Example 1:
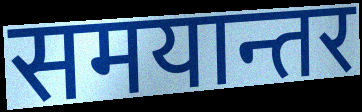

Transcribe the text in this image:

समयान्तर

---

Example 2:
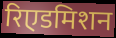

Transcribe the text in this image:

रिएडमिशन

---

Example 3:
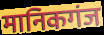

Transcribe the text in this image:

मानिकगंज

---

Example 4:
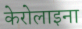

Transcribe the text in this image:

केरोलाइना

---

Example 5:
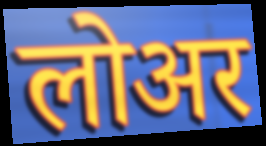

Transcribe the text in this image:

लोअर